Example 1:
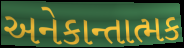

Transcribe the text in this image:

અનેકાન્તાત્મક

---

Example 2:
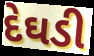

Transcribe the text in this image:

દેઘડી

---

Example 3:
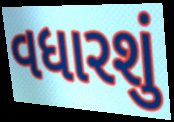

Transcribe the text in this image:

વધારશું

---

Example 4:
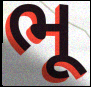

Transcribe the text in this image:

ભૂ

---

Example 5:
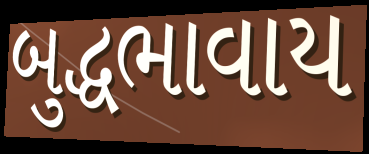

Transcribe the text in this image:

બુદ્ધભાવાય